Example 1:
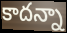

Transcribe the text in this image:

కాదన్నా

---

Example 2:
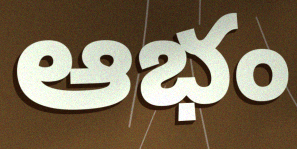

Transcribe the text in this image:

ఆభం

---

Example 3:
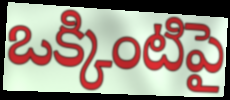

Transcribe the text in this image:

ఒక్కింటిపై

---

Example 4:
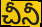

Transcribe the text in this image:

చీనీ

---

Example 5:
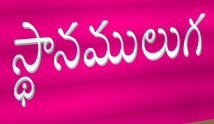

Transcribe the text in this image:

స్థానములుగ